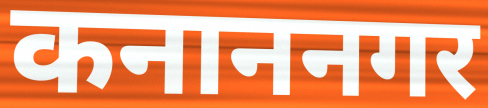
कनाननगर